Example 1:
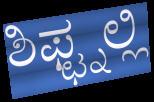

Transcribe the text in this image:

ಶಿಫ್ಟ್ನಲ್ಲಿ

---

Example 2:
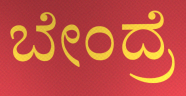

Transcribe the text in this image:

ಬೇಂದ್ರೆ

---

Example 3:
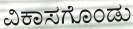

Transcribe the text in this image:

ವಿಕಾಸಗೊಂಡು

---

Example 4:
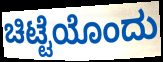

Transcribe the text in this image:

ಚಿಟ್ಟೆಯೊಂದು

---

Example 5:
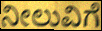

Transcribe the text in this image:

ನೀಲುವಿಗೆ